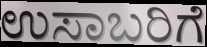
ಉಸಾಬರಿಗೆ